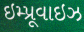
ઇમ્પ્રૂવાઇઝ